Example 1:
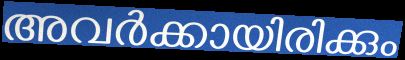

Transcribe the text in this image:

അവർക്കായിരിക്കും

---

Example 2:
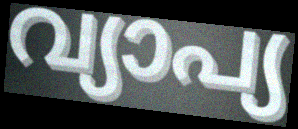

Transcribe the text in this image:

വ്യാപ്യ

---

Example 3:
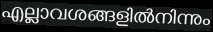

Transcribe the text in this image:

എല്ലാവശങ്ങളിൽനിന്നും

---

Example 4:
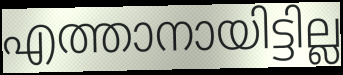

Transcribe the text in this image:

എത്താനായിട്ടില്ല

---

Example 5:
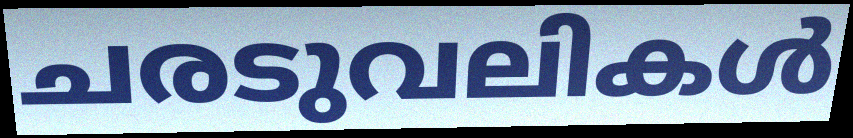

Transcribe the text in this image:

ചരടുവലികൾ